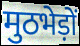
मुठभेड़ों